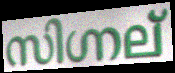
സിഗ്നല്